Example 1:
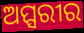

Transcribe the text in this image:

ଅପ୍ସରୀର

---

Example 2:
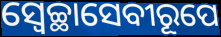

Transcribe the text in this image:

ସ୍ଵେଚ୍ଛାସେବୀରୂପେ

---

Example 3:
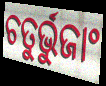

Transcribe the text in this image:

ଚତୁର୍ଭୁଜାଂ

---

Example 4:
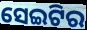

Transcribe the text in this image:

ସେଇଟିର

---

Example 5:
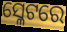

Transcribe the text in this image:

ସ୍ଳେଟରେ